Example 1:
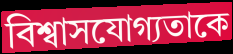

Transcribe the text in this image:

বিশ্বাসযোগ্যতাকে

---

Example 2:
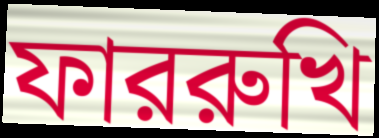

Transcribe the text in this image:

ফাররুখি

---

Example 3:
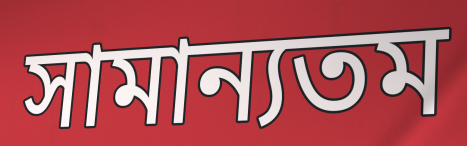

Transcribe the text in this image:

সামান্যতম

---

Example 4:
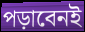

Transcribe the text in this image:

পড়াবেনই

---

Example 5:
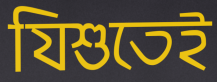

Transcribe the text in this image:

যিশুতেই